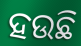
ହଉଛି